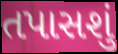
તપાસશું